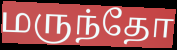
மருந்தோ